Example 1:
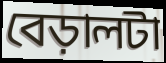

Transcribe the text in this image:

বেড়ালটা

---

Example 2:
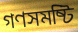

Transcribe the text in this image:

গণসমষ্টি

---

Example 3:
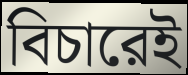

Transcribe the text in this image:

বিচারেই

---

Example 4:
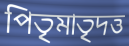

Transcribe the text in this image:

পিতৃমাতৃদত্ত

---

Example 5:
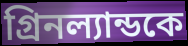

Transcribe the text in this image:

গ্রিনল্যান্ডকে